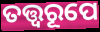
ତତ୍ତ୍ୱରୂପେ